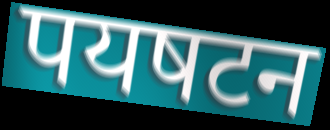
पयषटन